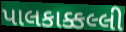
પાલકાક્કલ્લી